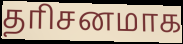
தரிசனமாக